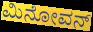
ಮಿನೋವನ್